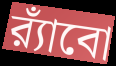
র‍্যাঁবো